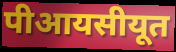
पीआयसीयूत